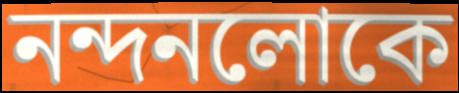
নন্দনলোকে